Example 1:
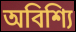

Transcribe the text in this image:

অবিশ্যি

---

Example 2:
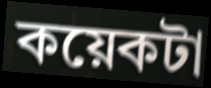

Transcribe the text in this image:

কয়েকটা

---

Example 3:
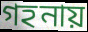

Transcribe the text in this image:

গহনায়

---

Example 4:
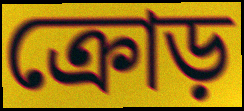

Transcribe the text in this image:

ক্রোড়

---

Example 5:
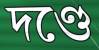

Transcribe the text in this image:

দণ্ডে